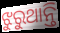
ଝୁରୁଥାନ୍ତି